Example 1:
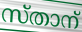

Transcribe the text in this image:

സ്താന്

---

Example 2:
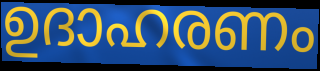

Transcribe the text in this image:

ഉദാഹരണം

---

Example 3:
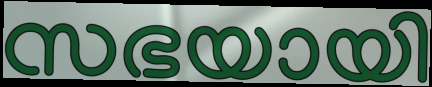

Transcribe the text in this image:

സഭയായി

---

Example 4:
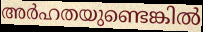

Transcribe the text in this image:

അർഹതയുണ്ടെങ്കിൽ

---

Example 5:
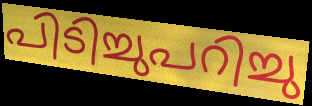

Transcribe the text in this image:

പിടിച്ചുപറിച്ചു